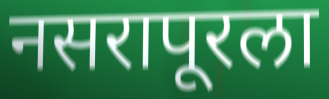
नसरापूरला